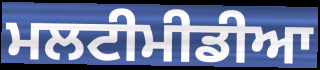
ਮਲਟੀਮੀਡੀਆ